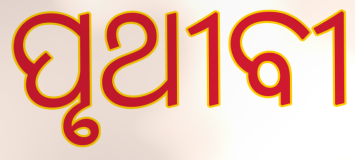
ପୃଥୀବୀ